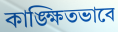
কাঙ্ক্ষিতভাবে